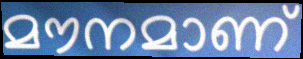
മൗനമാണ്